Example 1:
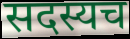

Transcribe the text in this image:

सदस्यच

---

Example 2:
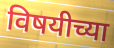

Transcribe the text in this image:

विषयीच्या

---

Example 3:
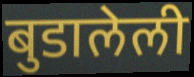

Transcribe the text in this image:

बुडालेली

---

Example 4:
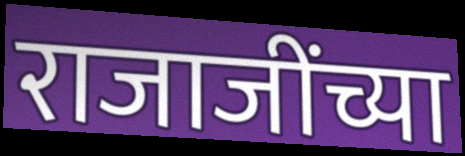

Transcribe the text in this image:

राजाजींच्या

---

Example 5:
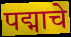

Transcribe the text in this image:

पद्माचे